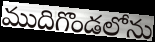
ముదిగొండలోను